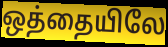
ஒத்தையிலே